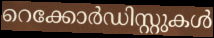
റെക്കോർഡിസ്റ്റുകൾ